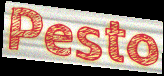
Pesto